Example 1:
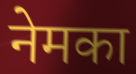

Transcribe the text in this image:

नेमका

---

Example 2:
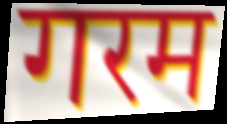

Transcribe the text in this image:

गरम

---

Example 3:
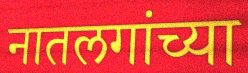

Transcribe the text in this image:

नातलगांच्या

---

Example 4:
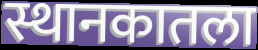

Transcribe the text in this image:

स्थानकातला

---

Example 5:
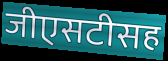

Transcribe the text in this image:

जीएसटीसह